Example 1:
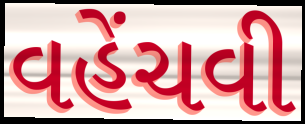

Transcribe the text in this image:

વહેંચવી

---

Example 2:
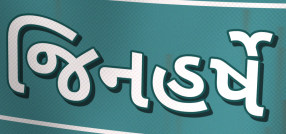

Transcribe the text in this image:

જિનહર્ષે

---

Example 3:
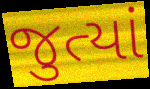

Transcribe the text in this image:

જુત્યાં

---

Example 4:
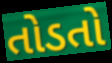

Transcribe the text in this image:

તોડતો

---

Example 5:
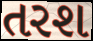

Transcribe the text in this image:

તરશ